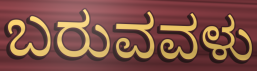
ಬರುವವಳು